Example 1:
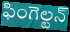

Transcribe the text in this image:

ఫింగెల్టన్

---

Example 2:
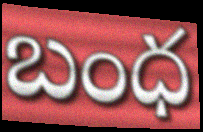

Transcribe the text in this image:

బంధ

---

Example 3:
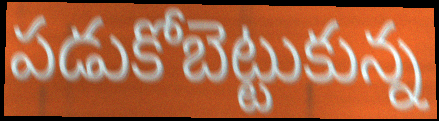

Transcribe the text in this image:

పడుకోబెట్టుకున్న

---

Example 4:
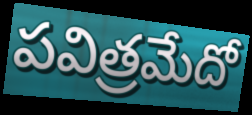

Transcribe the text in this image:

పవిత్రమేదో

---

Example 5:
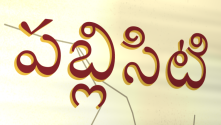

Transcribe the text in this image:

పబ్లిసిటి